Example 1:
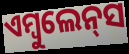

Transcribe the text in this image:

ଏମ୍ବୁଲେନ୍‌ସ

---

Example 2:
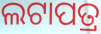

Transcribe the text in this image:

ଲଟାପତ୍ର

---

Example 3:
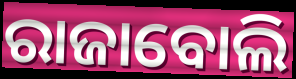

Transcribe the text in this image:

ରାଜାବୋଲି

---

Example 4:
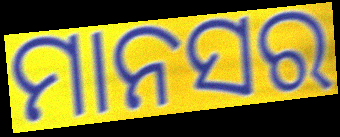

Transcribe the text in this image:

ମାନସର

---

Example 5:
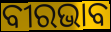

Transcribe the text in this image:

ବୀରଭାବ